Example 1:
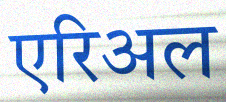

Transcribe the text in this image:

एरिअल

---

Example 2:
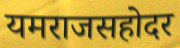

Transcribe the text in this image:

यमराजसहोदर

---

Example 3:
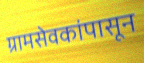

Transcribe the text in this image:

ग्रामसेवकांपासून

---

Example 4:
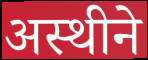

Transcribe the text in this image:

अस्थीने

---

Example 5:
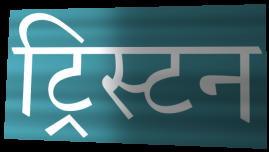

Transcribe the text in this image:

ट्रिस्टन